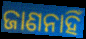
ଜାଣନାହିଁ